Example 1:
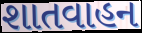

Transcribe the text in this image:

શાતવાહન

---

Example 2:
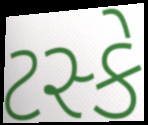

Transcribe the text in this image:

ટસ્કે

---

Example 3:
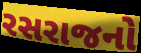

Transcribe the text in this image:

રસરાજનો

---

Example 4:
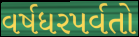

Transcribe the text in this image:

વર્ષધરપર્વતો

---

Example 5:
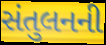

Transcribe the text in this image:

સંતુલનની